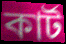
কাৰ্ট